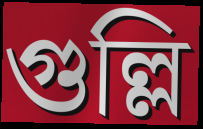
গুল্লি